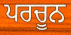
ਪਰਚੂਨ